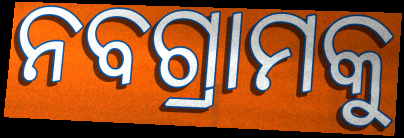
ନବଗ୍ରାମକୁ